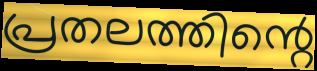
പ്രതലത്തിന്റെ